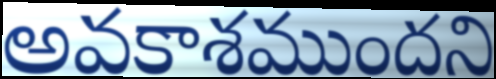
అవకాశముందని